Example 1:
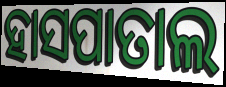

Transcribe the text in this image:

ହାସପାତାଲ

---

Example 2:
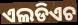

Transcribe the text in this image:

ଏଲଡିଏଚ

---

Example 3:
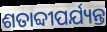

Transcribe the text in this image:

ଶତାବ୍ଦୀପର୍ଯ୍ୟନ୍ତ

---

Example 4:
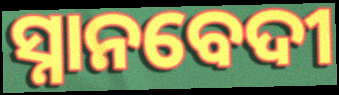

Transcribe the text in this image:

ସ୍ନାନବେଦୀ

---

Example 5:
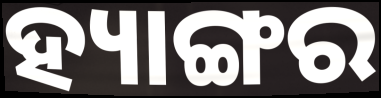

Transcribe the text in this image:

ହ୍ୟାଙ୍ଗର